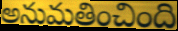
అనుమతించింది